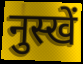
नुस्खें